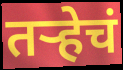
तर्‍हेचं